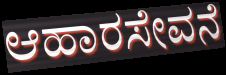
ಆಹಾರಸೇವನೆ